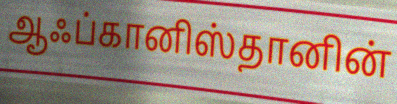
ஆஃப்கானிஸ்தானின்